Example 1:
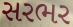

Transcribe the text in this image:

સરભર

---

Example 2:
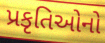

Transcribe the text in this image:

પ્રકૃતિઓનો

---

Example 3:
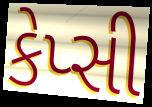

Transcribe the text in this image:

કેપ્સી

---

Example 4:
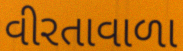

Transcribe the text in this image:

વીરતાવાળા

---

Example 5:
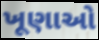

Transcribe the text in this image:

ખૂણાઓ